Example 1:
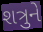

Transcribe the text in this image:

શત્રુને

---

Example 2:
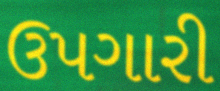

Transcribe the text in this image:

ઉપગારી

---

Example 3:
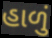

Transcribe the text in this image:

હાળું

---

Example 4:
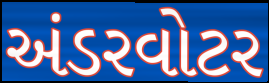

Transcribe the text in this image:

અંડરવોટર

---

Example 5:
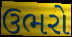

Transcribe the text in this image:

ઉભરો